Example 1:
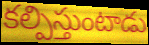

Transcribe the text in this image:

కల్పిస్తుంటాడు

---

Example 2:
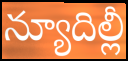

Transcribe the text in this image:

న్యూదిల్లీ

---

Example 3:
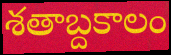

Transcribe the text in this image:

శతాబ్దకాలం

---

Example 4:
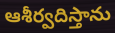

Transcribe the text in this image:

ఆశీర్వదిస్తాను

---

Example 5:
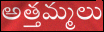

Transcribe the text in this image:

అత్తమ్మలు